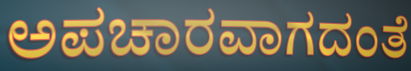
ಅಪಚಾರವಾಗದಂತೆ